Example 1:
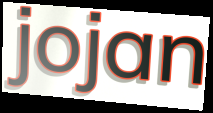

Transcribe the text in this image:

jojan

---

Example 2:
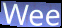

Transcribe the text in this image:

Wee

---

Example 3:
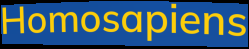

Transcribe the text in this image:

Homosapiens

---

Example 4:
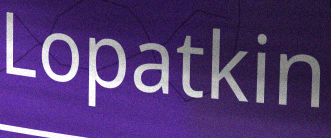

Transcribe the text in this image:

Lopatkin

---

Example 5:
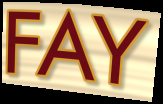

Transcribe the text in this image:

FAY